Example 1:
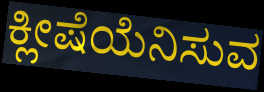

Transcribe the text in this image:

ಕ್ಲೀಷೆಯೆನಿಸುವ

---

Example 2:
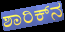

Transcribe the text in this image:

ಶಾರಿಕ್‌ನ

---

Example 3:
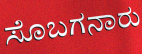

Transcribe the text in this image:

ಸೊಬಗನಾರು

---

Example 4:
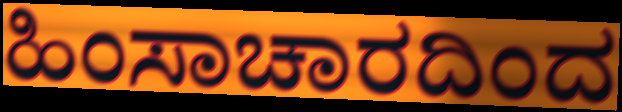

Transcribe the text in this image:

ಹಿಂಸಾಚಾರದಿಂದ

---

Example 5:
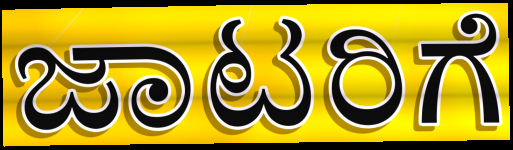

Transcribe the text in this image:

ಜಾಟರಿಗೆ